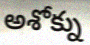
అశోక్ను